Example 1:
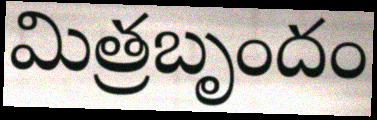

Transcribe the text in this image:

మిత్రబృందం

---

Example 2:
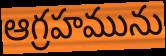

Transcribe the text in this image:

ఆగ్రహమును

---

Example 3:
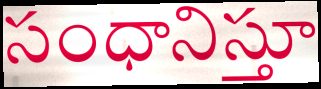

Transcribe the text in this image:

సంధానిస్తూ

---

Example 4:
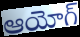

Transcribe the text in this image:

ఆయోగ్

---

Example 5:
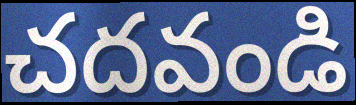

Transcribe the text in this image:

చదవండి